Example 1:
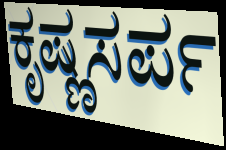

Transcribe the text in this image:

ಕೃಷ್ಣಸರ್ಪ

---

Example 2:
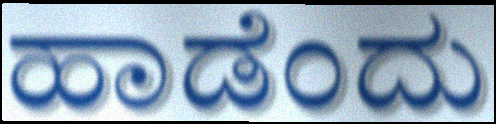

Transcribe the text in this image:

ಹಾಡೆಂದು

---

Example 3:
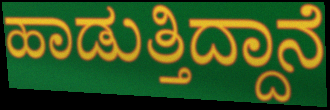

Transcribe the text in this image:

ಹಾಡುತ್ತಿದ್ದಾನೆ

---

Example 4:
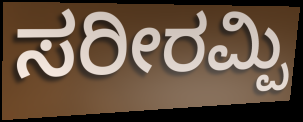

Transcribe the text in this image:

ಸರೀರಮ್ಪಿ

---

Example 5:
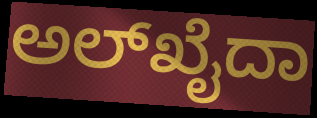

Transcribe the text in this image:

ಅಲ್‌ಖೈದಾ